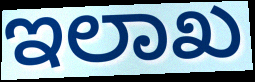
ಇಲಾಖ